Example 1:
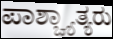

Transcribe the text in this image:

ಪಾಶ್ಚ್ಯಾತ್ಯರು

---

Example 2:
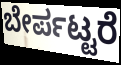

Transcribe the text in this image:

ಬೇರ್ಪಟ್ಟರೆ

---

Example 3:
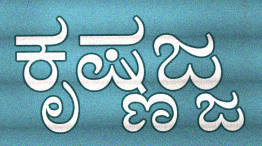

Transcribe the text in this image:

ಕೃಷ್ಣಜ್ಜ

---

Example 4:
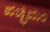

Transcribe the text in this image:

ಪಚ್ಛಿಮಂ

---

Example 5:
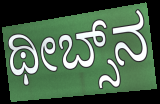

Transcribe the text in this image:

ಥೀಬ್ಸ್‌ನ